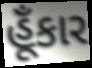
હૂઁકાર